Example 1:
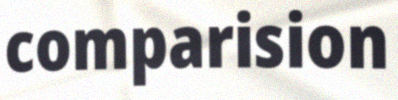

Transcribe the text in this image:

comparision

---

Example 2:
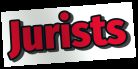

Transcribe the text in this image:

Jurists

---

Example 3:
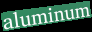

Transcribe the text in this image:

aluminum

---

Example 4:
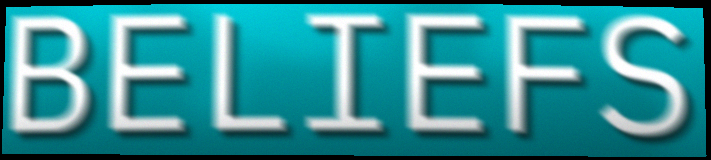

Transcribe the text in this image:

BELIEFS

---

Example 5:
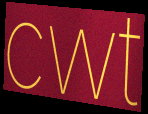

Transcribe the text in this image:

cwt